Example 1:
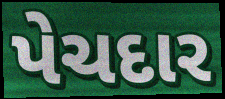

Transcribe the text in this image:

પેચદાર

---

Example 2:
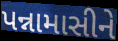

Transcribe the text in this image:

પન્નામાસીને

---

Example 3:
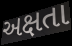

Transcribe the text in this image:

અક્ષતા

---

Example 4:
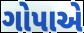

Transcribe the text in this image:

ગોપાએ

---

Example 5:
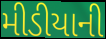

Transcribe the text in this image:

મીડીયાની